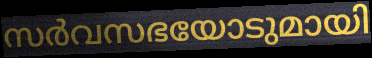
സർവസഭയോടുമായി